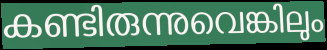
കണ്ടിരുന്നുവെങ്കിലും